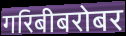
गरिबीबरोबर